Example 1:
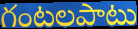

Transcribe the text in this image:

గంటలపాటు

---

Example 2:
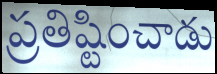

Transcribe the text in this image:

ప్రతిష్టించాడు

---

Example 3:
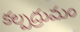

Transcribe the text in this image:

కల్పద్రుమం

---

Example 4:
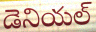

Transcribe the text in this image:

డెనియల్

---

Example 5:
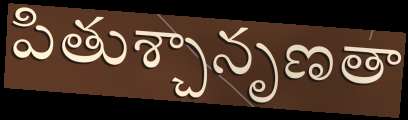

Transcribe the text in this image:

పితుశ్చానృణతా